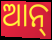
ଆନ୍